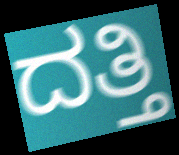
ದತ್ತಿ